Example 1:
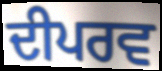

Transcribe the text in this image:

ਦੀਪਰਵ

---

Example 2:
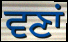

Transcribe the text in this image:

ਵਣਾਂ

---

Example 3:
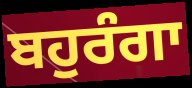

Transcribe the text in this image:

ਬਹੁਰੰਗਾ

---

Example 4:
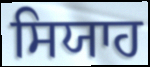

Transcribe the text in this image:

ਸਿਯਾਹ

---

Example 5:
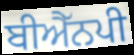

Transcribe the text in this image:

ਬੀਐੱਨਪੀ